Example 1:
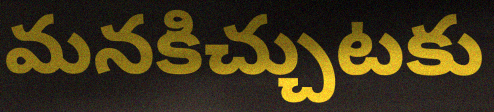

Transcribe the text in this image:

మనకిచ్చుటకు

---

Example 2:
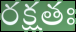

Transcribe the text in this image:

రక్షతః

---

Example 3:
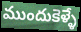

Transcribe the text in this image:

ముందుకెళ్ళే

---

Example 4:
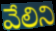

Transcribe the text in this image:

వేలిని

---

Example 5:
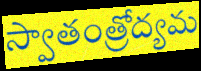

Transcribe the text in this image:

స్వాతంత్రోద్యమ